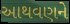
આથવણને